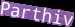
Parthiv